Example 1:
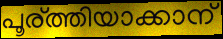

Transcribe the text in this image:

പൂര്ത്തിയാക്കാന്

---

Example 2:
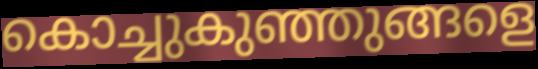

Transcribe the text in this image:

കൊച്ചുകുഞ്ഞുങ്ങളെ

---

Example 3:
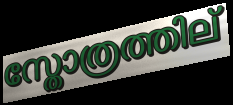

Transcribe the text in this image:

സ്തോത്രത്തില്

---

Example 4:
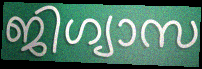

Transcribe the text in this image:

ജിഗ്യാസ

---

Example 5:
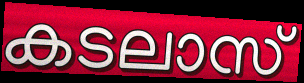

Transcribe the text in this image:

കടലാസ്